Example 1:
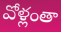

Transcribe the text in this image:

వోళ్లంతా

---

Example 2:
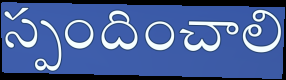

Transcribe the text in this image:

స్పందించాలి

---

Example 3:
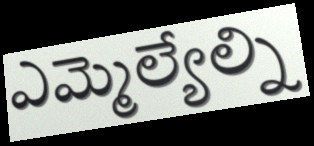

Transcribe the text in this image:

ఎమ్మెల్యేల్ని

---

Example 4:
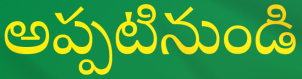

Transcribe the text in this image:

అప్పటినుండి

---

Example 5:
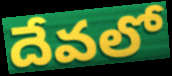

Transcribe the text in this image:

దేవలో